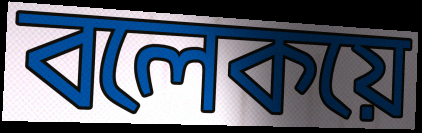
বলেকয়ে